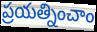
ప్రయత్నించాం